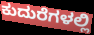
ಕುದುರೆಗಳಲ್ಲಿ